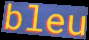
bleu